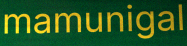
mamunigal